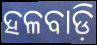
ହଳବାଡ଼ି